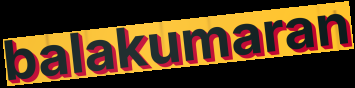
balakumaran